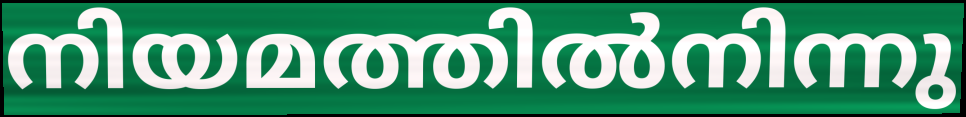
നിയമത്തിൽനിന്നു